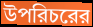
উপরিচরের